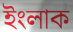
ইংলাক